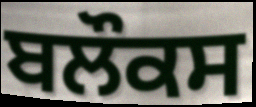
ਬਲੌਕਸ